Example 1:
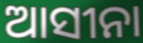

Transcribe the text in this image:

ଆସୀନା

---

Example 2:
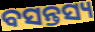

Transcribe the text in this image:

ବସନ୍ତସ୍ୟ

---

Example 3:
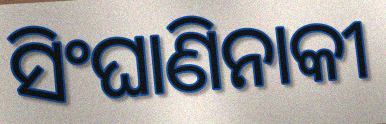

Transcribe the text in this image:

ସିଂଘାଣିନାକୀ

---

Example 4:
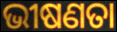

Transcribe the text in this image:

ଭୀଷଣତା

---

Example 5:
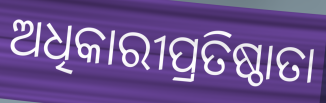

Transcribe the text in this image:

ଅଧିକାରୀପ୍ରତିଷ୍ଠାତା